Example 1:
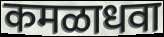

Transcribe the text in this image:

कमळाधवा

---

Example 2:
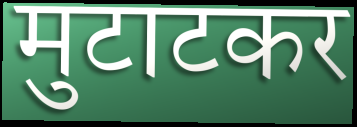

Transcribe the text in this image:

मुटाटकर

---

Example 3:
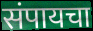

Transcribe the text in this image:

संपायचा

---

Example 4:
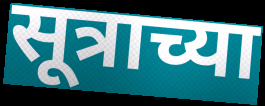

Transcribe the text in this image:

सूत्राच्या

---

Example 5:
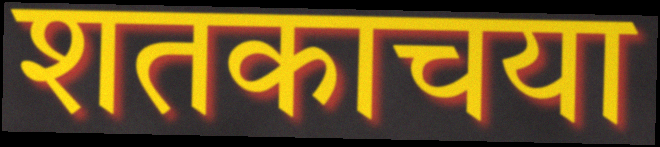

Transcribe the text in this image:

शतकाचया